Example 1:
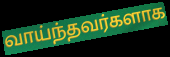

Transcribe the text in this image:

வாய்ந்தவர்களாக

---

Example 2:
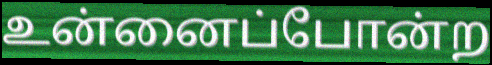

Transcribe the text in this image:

உன்னைப்போன்ற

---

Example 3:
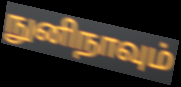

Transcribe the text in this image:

நுனிநாவும்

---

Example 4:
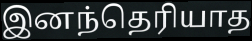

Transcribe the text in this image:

இனந்தெரியாத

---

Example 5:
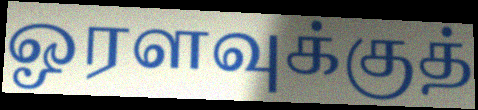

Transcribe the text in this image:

ஓரளவுக்குத்